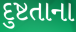
દુષ્ટતાના